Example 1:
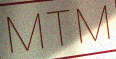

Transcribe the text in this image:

MTM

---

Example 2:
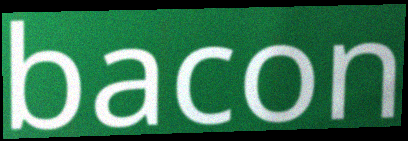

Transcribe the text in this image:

bacon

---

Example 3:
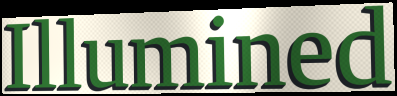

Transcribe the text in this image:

Illumined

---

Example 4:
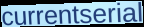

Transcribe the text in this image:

currentserial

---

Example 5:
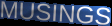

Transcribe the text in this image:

MUSINGS